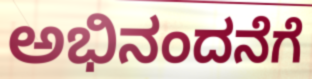
ಅಭಿನಂದನೆಗೆ